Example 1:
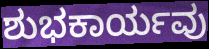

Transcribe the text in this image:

ಶುಭಕಾರ್ಯವು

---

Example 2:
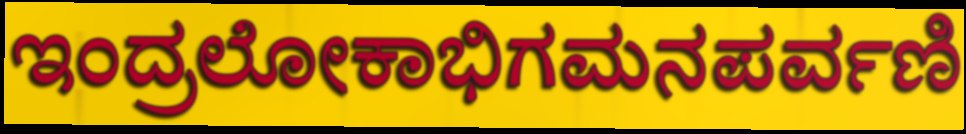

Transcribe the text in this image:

ಇಂದ್ರಲೋಕಾಭಿಗಮನಪರ್ವಣಿ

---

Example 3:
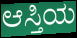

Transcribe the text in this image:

ಆಸ್ತಿಯ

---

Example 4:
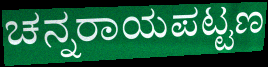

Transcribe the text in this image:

ಚನ್ನರಾಯಪಟ್ಟಣ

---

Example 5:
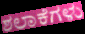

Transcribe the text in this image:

ಶಲಾಕೆಗಳು